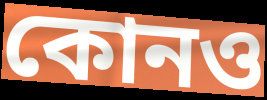
কোনও